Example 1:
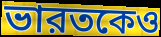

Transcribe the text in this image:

ভারতকেও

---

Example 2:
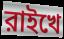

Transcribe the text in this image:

রাইখে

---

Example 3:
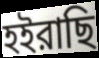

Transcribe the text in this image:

হইরাছি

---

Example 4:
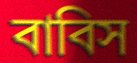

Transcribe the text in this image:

বাবিস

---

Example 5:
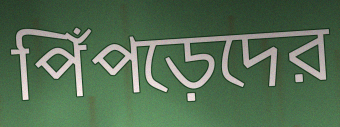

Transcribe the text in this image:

পিঁপড়েদের